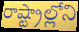
రాష్ట్రాల్లోని